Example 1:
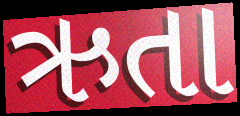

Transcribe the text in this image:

ઋતા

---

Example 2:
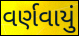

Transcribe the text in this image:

વર્ણવાયું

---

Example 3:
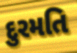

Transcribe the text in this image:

દુરમતિ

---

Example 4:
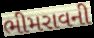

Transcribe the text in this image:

ભીમરાવની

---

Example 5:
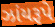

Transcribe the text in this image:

ઝાંયરૂપે